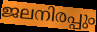
ജലനിരപ്പും